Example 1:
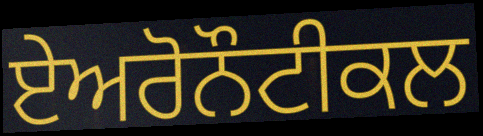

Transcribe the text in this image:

ਏਅਰੋਨੌਟੀਕਲ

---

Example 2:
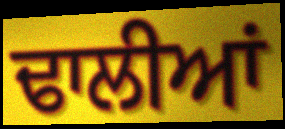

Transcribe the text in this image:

ਢਾਲੀਆਂ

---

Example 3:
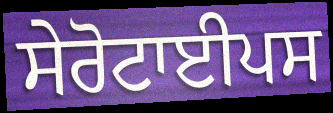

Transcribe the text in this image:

ਸੇਰੋਟਾਈਪਸ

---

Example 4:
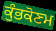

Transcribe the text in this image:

ਕੁੰਭਕੋਣਮ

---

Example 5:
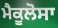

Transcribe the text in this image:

ਮੈਕੂਲੋਸਾ